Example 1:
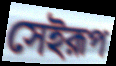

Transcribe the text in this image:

সেইরূপ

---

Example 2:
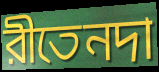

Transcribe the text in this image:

রীতেনদা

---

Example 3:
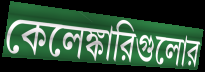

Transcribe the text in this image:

কেলেঙ্কারিগুলোর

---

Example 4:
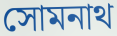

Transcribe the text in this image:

সোমনাথ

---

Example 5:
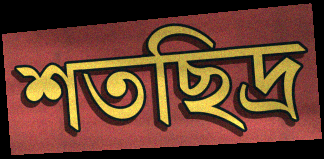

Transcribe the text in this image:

শতছিদ্র